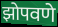
झोपवणे